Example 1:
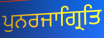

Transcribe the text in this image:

ਪੁਨਰਜਾਗ੍ਰਿਤਿ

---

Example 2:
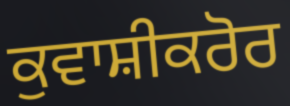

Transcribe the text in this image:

ਕੁਵਾਸ਼ੀਕਰੋਰ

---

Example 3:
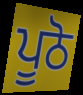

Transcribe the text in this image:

ਪੂਠੋ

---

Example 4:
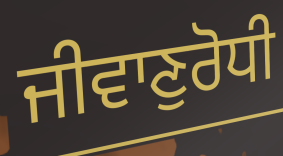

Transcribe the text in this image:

ਜੀਵਾਣੁਰੋਧੀ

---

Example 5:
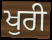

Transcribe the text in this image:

ਖੁਰੀ